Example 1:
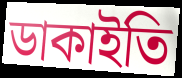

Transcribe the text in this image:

ডাকাইতি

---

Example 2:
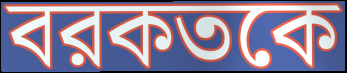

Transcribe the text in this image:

বরকতকে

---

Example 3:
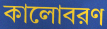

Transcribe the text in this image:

কালোবরণ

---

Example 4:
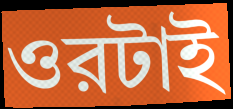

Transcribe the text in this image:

ওরটাই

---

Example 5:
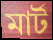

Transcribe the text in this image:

মার্ট